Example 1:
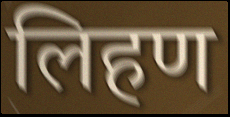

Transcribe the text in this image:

लिहण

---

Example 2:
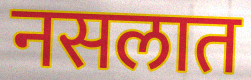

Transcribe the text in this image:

नसलात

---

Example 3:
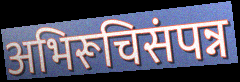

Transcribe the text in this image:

अभिरूचिसंपन्न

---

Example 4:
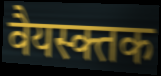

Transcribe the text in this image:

वैयस्क्तक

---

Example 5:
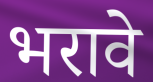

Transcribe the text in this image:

भरावे